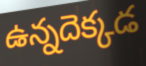
ఉన్నదెక్కడ